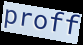
proff